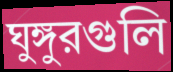
ঘুঙ্গুরগুলি